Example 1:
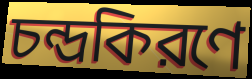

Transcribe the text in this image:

চন্দ্রকিরণে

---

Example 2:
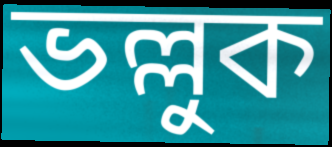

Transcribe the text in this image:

ভল্লুক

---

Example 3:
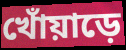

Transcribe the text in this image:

খোঁয়াড়ে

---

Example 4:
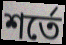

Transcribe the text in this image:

শর্তে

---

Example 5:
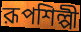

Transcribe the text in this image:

রূপশিল্পী